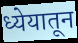
ध्येयातून